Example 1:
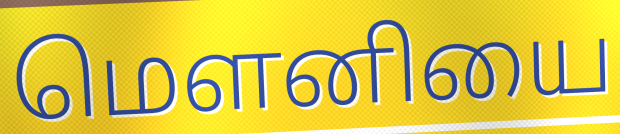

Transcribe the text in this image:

மௌனியை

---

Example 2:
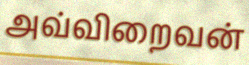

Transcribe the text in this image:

அவ்விறைவன்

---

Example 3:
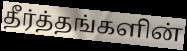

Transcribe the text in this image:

தீர்த்தங்களின்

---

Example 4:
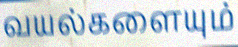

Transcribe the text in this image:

வயல்களையும்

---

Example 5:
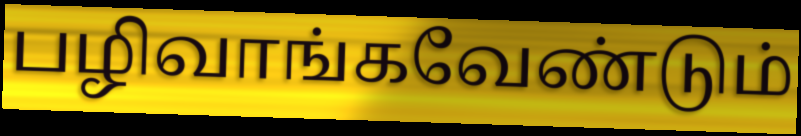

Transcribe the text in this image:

பழிவாங்கவேண்டும்